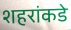
शहरांकडे